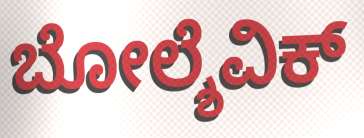
ಬೋಲ್ಶೆವಿಕ್